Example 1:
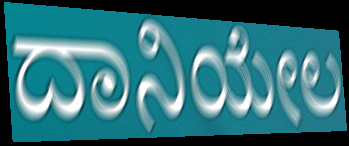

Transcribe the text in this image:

ದಾನಿಯೇಲ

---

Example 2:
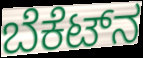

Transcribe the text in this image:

ಬೆಕೆಟ್‌ನ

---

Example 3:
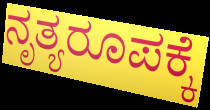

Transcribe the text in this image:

ನೃತ್ಯರೂಪಕ್ಕೆ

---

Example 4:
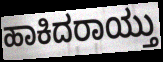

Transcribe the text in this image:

ಹಾಕಿದರಾಯ್ತು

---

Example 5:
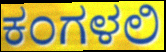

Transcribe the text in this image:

ಕಂಗಳಲಿ